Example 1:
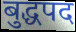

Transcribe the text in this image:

बुद्धपद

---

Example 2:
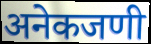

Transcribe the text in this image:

अनेकजणी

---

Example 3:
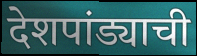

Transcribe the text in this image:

देशपांड्याची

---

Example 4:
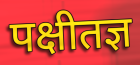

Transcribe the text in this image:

पक्षीतज्ञ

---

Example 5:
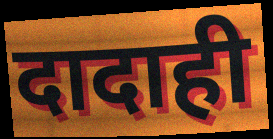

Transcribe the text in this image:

दादाही